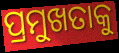
ପ୍ରମୁଖତାକୁ